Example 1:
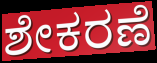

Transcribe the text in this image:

ಶೇಕರಣೆ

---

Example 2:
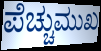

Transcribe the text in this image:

ಪೆಚ್ಚುಮುಖ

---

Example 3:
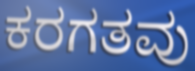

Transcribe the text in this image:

ಕರಗತವು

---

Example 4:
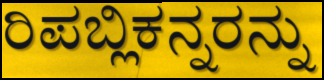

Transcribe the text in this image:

ರಿಪಬ್ಲಿಕನ್ನರನ್ನು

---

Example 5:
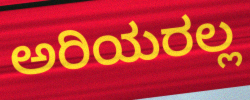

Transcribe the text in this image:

ಅರಿಯರಲ್ಲ